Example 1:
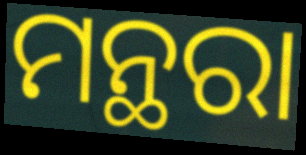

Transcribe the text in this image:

ମନ୍ଥରା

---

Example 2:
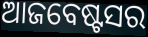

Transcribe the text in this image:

ଆଜବେଷ୍ଟସର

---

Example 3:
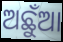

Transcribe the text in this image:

ଅଛୁଁଆ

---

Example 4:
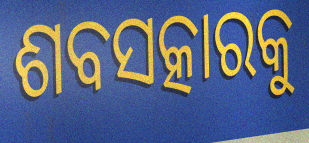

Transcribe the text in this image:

ଶବସତ୍କାରକୁ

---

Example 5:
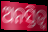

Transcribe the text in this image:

ଅନସ୍ତିତ୍ୱ